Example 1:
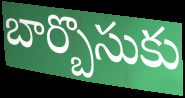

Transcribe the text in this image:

బార్బొసుకు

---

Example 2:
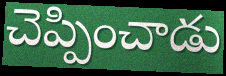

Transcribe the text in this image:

చెప్పించాడు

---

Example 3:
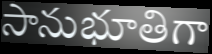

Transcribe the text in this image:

సానుభూతిగా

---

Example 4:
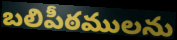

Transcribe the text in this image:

బలిపీఠములను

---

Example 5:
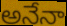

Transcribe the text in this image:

అనేనా